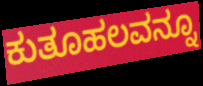
ಕುತೂಹಲವನ್ನೂ